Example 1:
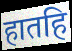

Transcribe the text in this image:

हातहि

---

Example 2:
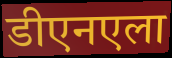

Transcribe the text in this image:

डीएनएला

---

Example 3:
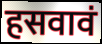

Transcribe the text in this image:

हसवावं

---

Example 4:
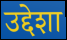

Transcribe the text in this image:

उद्देशा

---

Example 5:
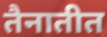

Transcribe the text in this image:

तैनातीत